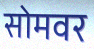
सोमवर